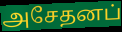
அசேதனப்